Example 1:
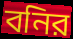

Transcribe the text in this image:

বনির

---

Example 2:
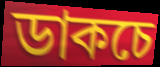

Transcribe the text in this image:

ডাকচে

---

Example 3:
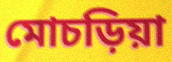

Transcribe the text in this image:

মোচড়িয়া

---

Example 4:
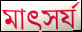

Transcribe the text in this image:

মাৎসর্য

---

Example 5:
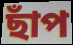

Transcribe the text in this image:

ছাঁপ